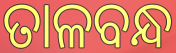
ତାଳବନ୍ଧ